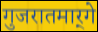
गुजरातमार्गे